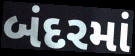
બંદરમાં